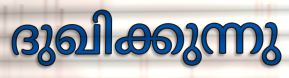
ദുഖിക്കുന്നു